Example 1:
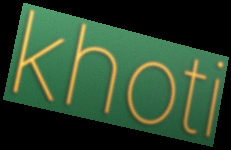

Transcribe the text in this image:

khoti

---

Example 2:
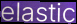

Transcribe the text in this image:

elastic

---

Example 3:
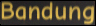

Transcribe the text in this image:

Bandung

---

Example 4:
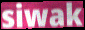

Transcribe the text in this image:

siwak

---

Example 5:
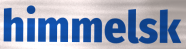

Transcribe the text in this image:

himmelsk